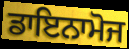
ਡਾਇਨਾਮੋਜ